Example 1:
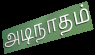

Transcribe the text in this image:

அடிநாதம்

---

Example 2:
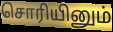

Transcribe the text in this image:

சொரியினும்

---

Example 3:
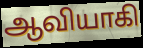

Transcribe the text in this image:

ஆவியாகி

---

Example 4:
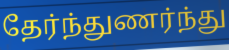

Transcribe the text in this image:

தேர்ந்துணர்ந்து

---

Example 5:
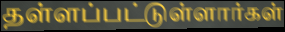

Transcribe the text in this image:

தள்ளப்பட்டுள்ளார்கள்